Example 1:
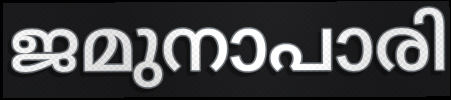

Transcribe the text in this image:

ജമുനാപാരി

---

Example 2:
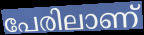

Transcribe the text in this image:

പേരിലാണ്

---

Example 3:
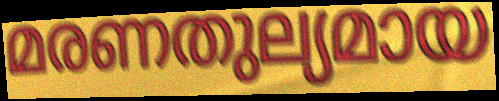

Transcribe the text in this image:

മരണതുല്യമായ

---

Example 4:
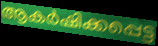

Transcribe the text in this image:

ആകർഷിക്കപ്പെട്ട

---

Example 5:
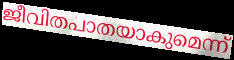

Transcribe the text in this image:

ജീവിതപാതയാകുമെന്ന്